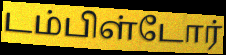
டம்பிள்டோர்